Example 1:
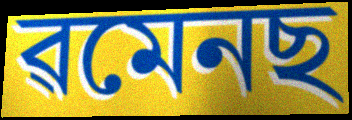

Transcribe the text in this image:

ৱমেনছ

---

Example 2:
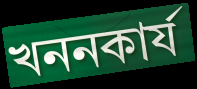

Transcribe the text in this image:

খননকাৰ্য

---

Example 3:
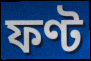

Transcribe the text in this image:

ফণ্ট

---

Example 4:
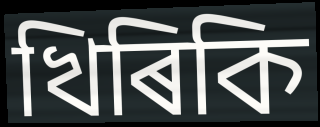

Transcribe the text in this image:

খিৰিকি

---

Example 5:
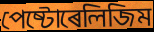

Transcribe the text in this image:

পেষ্টোৰেলিজিম